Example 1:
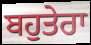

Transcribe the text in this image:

ਬਹੁਤੇਰਾ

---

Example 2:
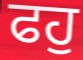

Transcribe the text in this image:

ਫਹੁ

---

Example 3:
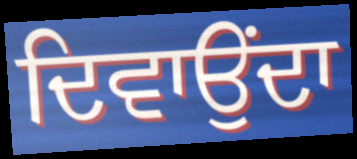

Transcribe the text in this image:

ਦਿਵਾਉਂਦਾ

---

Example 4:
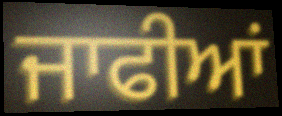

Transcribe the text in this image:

ਜਾਫੀਆਂ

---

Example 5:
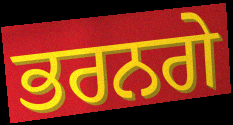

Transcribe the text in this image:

ਭਰਨਗੇ